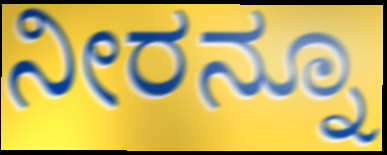
ನೀರನ್ನೂ